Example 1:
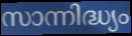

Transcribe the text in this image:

സാന്നിദ്ധ്യം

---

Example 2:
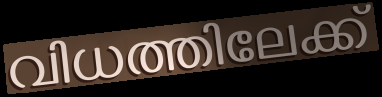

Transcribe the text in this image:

വിധത്തിലേക്ക്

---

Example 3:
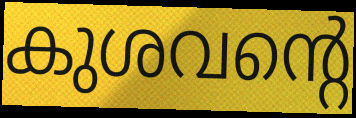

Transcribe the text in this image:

കുശവന്റെ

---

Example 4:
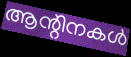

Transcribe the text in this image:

ആന്റിനകൾ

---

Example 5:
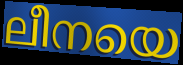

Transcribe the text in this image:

ലീനയെ